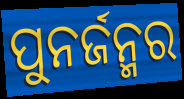
ପୁନର୍ଜନ୍ମର